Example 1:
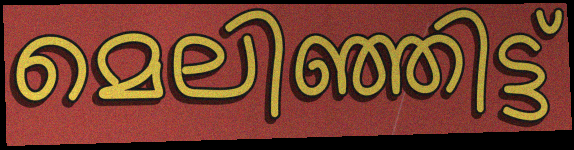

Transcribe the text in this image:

മെലിഞ്ഞിട്ട്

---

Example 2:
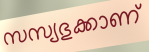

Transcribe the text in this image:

സസ്യഭുക്കാണ്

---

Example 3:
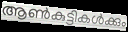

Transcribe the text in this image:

ആൺകുട്ടികൾക്കും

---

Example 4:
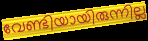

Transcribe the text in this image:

വേണ്ടിയായിരുന്നില്ല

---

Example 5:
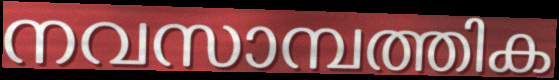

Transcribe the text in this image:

നവസാമ്പത്തിക